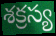
శక్రస్య